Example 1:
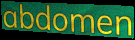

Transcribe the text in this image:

abdomen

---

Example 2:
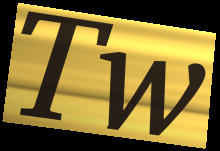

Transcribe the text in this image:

Tw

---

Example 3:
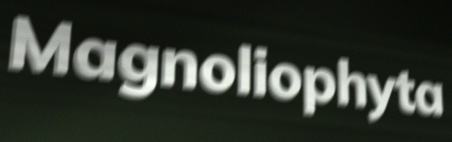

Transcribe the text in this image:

Magnoliophyta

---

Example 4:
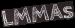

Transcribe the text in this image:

LMMAs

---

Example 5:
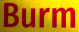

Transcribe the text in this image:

Burm